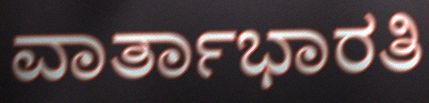
ವಾರ್ತಾಭಾರತಿ